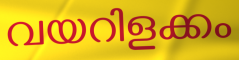
വയറിളക്കം